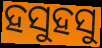
ହସୁହସୁ